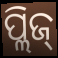
ପ୍ଲିଜ୍